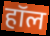
हॉल